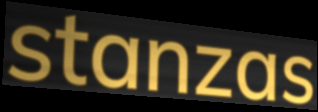
stanzas